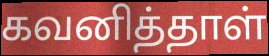
கவனித்தாள்